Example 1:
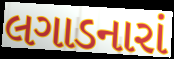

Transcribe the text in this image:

લગાડનારાં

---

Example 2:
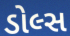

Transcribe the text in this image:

ડોલ્સ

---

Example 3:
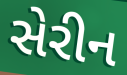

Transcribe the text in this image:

સેરીન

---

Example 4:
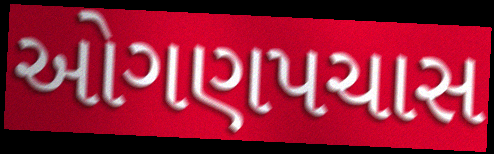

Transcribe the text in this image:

ઓગણપચાસ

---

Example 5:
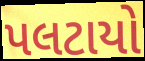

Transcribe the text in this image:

પલટાયો